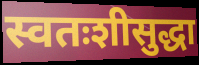
स्वतःशीसुद्धा